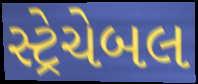
સ્ટ્રેચેબલ